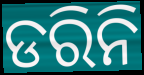
ଡରିନି